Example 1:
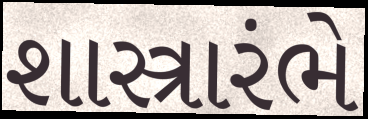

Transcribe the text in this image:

શાસ્ત્રારંભે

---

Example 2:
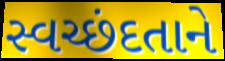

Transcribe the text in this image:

સ્વચ્છંદતાને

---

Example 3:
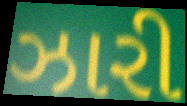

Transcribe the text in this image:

ઝારી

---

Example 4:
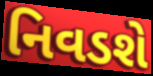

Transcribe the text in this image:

નિવડશે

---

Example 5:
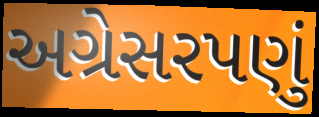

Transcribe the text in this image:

અગ્રેસરપણું